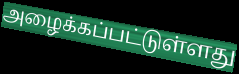
அழைக்கப்பட்டுள்ளது